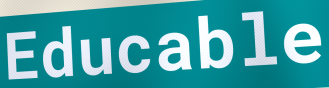
Educable